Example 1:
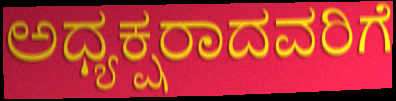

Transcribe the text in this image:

ಅಧ್ಯಕ್ಷರಾದವರಿಗೆ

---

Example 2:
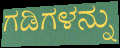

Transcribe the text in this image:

ಗಡಿಗಳನ್ನು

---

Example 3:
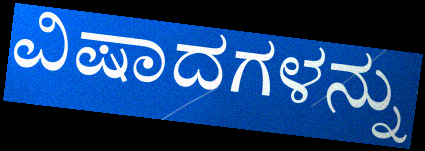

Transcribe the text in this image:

ವಿಷಾದಗಳನ್ನು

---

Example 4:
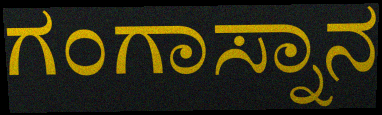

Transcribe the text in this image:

ಗಂಗಾಸ್ನಾನ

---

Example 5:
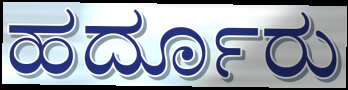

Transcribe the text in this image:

ಹರ್ದೂರು